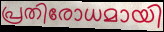
പ്രതിരോധമായി